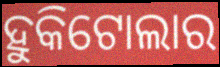
ହୁକିଟୋଲାର